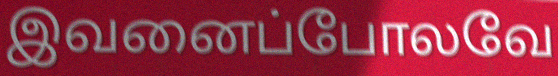
இவனைப்போலவே